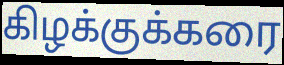
கிழக்குக்கரை